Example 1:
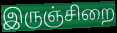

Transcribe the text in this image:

இருஞ்சிறை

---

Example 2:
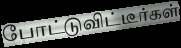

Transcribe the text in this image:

போட்டுவிட்டீர்கள்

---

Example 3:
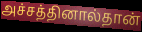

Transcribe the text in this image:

அச்சத்தினால்தான்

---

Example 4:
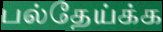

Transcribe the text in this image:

பல்தேய்க்க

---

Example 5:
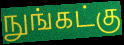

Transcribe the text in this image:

நுங்கட்கு